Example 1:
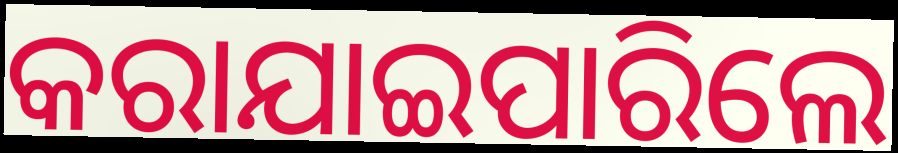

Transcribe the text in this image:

କରାଯାଇପାରିଲେ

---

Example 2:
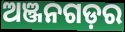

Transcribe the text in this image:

ଅଞ୍ଜନଗଡ଼ର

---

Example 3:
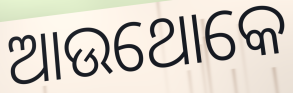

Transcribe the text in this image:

ଆଉଥୋକେ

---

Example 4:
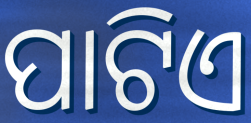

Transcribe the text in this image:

ପାଟିଏ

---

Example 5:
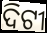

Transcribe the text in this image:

ଦିଟୀ